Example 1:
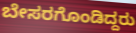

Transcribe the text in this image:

ಬೇಸರಗೊಂಡಿದ್ದರು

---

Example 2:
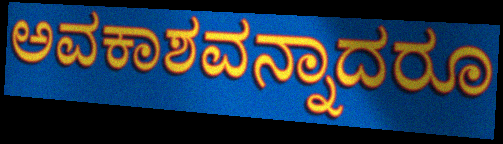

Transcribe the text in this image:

ಅವಕಾಶವನ್ನಾದರೂ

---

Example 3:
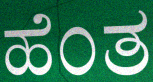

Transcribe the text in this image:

ಹೆಂತ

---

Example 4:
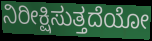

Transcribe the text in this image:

ನಿರೀಕ್ಷಿಸುತ್ತದೆಯೋ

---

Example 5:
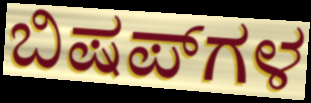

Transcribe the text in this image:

ಬಿಷಪ್‌ಗಳ